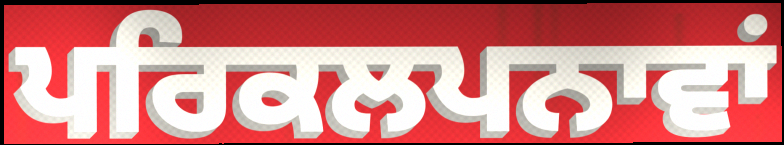
ਪਰਿਕਲਪਨਾਵਾਂ